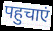
पहुचाएं